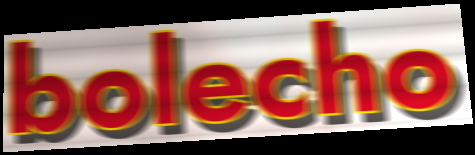
bolecho